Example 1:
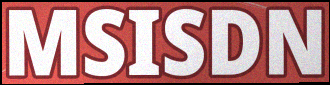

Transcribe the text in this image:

MSISDN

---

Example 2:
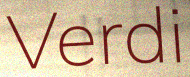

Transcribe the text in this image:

Verdi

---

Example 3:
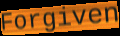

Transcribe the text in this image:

Forgiven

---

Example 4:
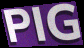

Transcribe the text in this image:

PIG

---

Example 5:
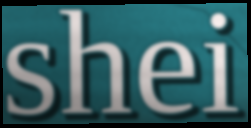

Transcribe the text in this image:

shei